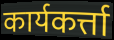
कार्यकर्त्ता